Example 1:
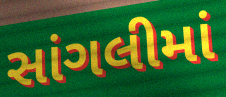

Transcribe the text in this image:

સાંગલીમાં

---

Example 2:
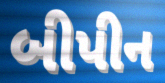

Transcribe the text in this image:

બીપીન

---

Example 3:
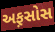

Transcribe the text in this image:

અફ઼સોસ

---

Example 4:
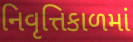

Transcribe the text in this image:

નિવૃત્તિકાળમાં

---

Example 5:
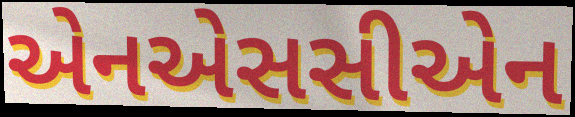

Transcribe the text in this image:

એનએસસીએન